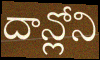
దాన్లోని